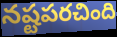
నష్టపరచింది